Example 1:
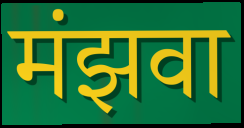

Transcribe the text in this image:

मंझवा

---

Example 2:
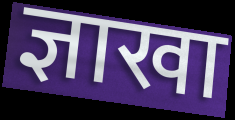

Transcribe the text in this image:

ज्ञाखा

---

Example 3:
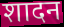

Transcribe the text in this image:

शादन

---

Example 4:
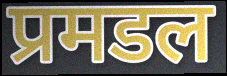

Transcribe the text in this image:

प्रमडल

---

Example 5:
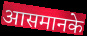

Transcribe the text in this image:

आसमानके